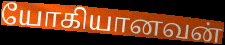
யோகியானவன்